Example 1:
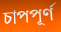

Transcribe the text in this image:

চাপপূর্ণ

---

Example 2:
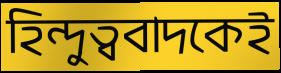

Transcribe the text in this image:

হিন্দুত্ববাদকেই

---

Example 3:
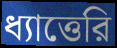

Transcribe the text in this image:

ধ্যাত্তেরি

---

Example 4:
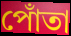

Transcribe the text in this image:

পোঁতা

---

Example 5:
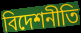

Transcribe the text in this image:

বিদেশনীতি